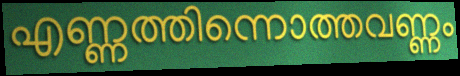
എണ്ണത്തിന്നൊത്തവണ്ണം